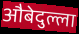
औबेदुल्ला